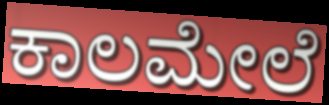
ಕಾಲಮೇಲೆ